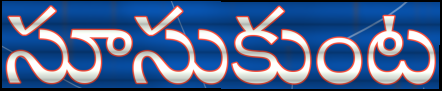
సూసుకుంట